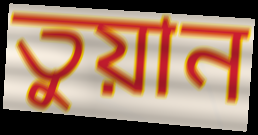
তুয়ান